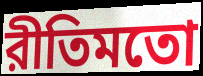
রীতিমতো